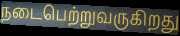
நடைபெற்றுவருகிறது